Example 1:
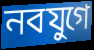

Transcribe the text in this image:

নবযুগে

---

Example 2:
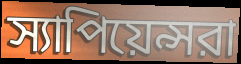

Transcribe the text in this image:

স্যাপিয়েন্সরা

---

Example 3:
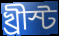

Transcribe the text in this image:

খ্রীস্ট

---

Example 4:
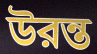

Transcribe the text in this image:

উরন্ত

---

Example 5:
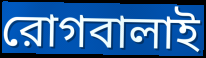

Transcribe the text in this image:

রোগবালাই